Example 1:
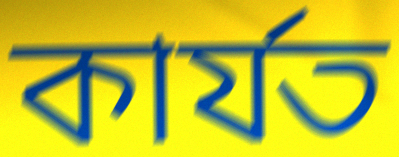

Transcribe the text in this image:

কার্যত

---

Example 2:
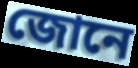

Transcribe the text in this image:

জোনে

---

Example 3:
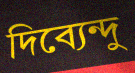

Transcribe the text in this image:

দিব্যেন্দু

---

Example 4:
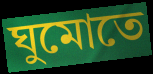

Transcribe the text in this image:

ঘুমোতে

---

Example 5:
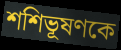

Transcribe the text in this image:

শশিভূষণকে